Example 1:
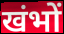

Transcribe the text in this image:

खंभों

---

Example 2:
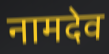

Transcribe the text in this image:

नामदेव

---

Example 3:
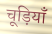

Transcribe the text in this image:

चूड़ियाँ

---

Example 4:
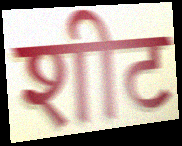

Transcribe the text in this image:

शीट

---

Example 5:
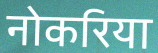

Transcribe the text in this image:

नोकरिया